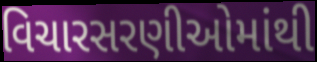
વિચારસરણીઓમાંથી